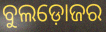
ବୁଲଡ଼ୋଜର